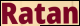
Ratan